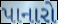
પાનારો